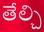
తేల్చి